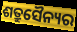
ଶତ୍ରୁସୈନ୍ୟର